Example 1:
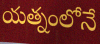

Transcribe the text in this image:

యత్నంలోనే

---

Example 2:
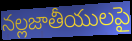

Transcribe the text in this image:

నల్లజాతీయులపై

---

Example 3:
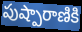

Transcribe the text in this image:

పుష్పారాణికి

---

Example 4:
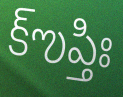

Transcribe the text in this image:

క్ఌప్తిః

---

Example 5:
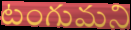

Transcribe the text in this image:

టంగుమని